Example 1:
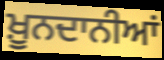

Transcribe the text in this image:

ਖ਼ੂਨਦਾਨੀਆਂ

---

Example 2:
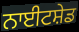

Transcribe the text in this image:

ਨਾਈਟਸ਼ੇਡ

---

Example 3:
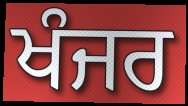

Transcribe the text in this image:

ਖੰਜਰ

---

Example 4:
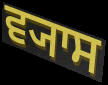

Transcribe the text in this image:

ਵ੍ਯਾਸ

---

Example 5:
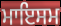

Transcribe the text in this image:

ਮਾਇਸਮ